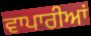
ਵਾਪਾਰੀਆਂ